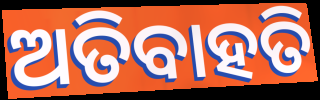
ଅତିବାହତି